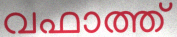
വഫാത്ത്